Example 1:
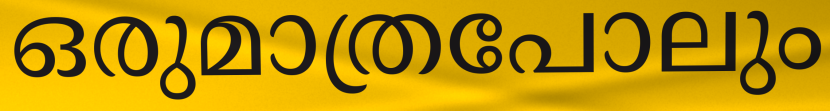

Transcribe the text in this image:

ഒരുമാത്രപോലും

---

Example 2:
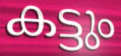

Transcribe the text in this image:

കട്ടും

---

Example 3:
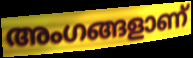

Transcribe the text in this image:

അംഗങ്ങളാണ്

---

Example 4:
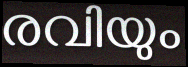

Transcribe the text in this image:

രവിയും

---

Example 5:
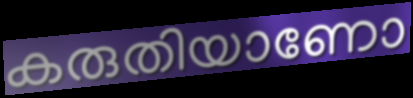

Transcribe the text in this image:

കരുതിയാണോ